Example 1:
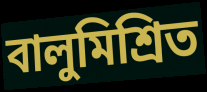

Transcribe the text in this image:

বালুমিশ্রিত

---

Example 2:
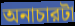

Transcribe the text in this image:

অনাচারটা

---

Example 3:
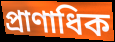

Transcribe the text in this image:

প্রাণাধিক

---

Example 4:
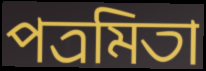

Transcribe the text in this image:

পত্রমিতা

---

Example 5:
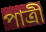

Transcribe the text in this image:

পাত্রী